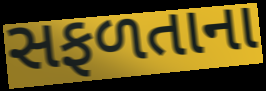
સફળતાના